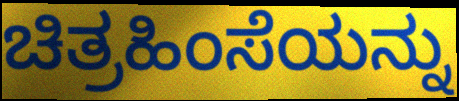
ಚಿತ್ರಹಿಂಸೆಯನ್ನು